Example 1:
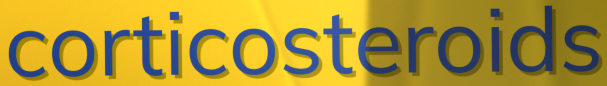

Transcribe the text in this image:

corticosteroids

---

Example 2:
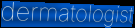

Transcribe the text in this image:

dermatologist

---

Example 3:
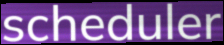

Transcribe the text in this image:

scheduler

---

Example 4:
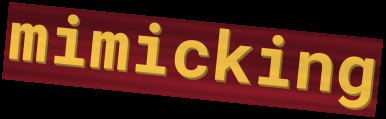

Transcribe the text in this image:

mimicking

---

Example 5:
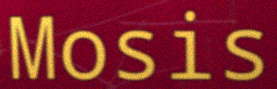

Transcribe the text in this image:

Mosis